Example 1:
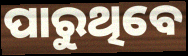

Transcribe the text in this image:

ପାରୁଥିବେ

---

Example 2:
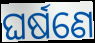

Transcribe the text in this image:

ଘର୍ଷଣେ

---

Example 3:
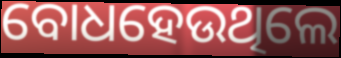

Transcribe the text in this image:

ବୋଧହେଉଥିଲେ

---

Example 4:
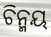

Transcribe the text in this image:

ଚିନ୍ମୟ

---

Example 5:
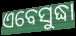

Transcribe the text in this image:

ଏବେସୁଦ୍ଧା